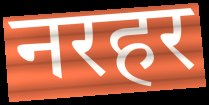
नरहर